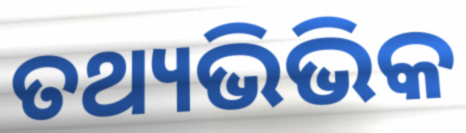
ତଥ୍ୟଭିଭିକ